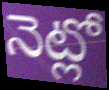
నెట్లో